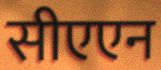
सीएएन